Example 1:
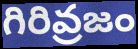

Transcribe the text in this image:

గిరివ్రజం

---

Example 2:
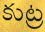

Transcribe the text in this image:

కుట్ర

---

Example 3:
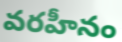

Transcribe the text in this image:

వరహీనం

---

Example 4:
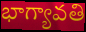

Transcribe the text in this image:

భాగ్యావతి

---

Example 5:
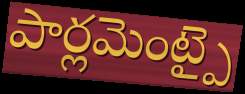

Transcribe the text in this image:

పార్లమెంట్పై